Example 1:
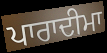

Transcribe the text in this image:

ਪਾਰਾਦੀਮਾ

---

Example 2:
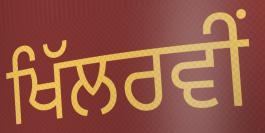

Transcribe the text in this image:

ਖਿੱਲਰਵੀਂ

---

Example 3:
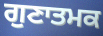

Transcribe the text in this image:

ਗੁਣਾਤਮਕ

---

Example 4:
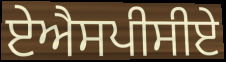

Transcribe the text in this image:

ਏਐਸਪੀਸੀਏ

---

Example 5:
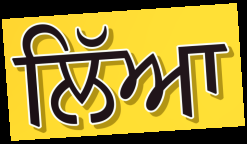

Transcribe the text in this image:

ਲਿੱਆ